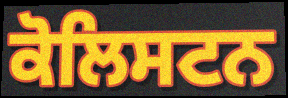
ਕੋਲਿਸਟਨ